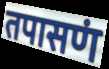
तपासणं